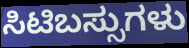
ಸಿಟಿಬಸ್ಸುಗಳು